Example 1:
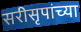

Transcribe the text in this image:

सरीसृपांच्या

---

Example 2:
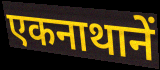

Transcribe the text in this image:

एकनाथानें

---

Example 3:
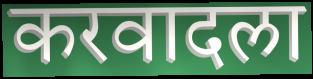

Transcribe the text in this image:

करवादला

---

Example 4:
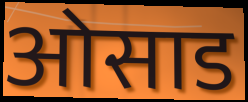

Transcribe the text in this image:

ओसाड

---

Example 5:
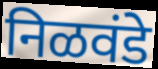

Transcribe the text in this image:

निळवंडे